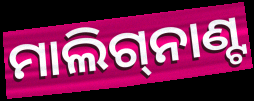
ମାଲିଗ୍‌ନାଣ୍ଟ